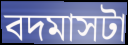
বদমাসটা